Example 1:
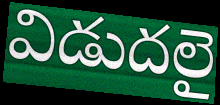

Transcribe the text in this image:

విడుదలై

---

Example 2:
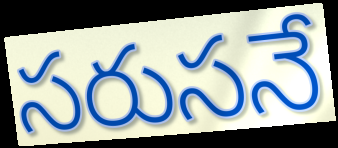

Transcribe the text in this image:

సరుసనే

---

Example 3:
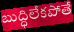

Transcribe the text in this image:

బుద్ధిలేకపోతే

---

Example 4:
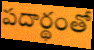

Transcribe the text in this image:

పదార్థంతో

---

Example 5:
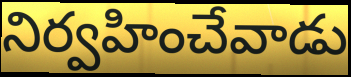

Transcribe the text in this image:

నిర్వహించేవాడు